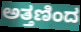
ಅತ್ತಣಿಂದ